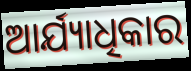
ଆର୍ଯ୍ୟାଧିକାର